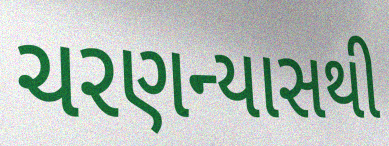
ચરણન્યાસથી